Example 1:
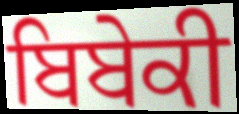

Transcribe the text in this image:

ਬਿਬੇਕੀ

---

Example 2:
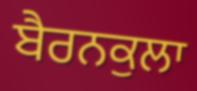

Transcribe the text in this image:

ਬੈਰਨਕੁਲਾ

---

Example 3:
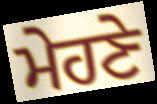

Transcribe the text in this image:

ਮੇਹਣੇ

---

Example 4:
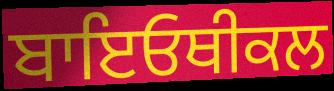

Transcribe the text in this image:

ਬਾਇਓਥੀਕਲ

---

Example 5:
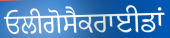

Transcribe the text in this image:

ਓਲੀਗੋਸੈਕਰਾਈਡਾਂ